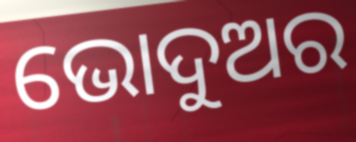
ଭୋଦୁଅର